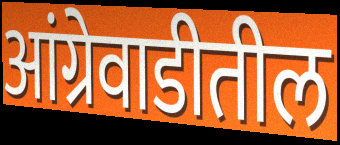
आंग्रेवाडीतील